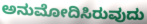
ಅನುಮೋದಿಸಿರುವುದು